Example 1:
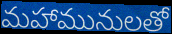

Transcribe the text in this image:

మహామునులతో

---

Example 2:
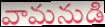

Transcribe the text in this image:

వామనుడి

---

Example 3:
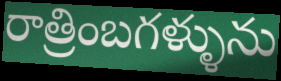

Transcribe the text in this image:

రాత్రింబగళ్ళును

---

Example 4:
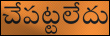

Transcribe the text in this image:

చేపట్టలేదు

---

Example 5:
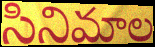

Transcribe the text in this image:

సినిమాల